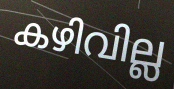
കഴിവില്ല